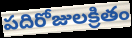
పదిరోజులక్రితం